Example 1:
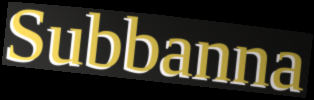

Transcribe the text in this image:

Subbanna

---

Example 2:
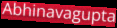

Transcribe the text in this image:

Abhinavagupta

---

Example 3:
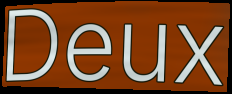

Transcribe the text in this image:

Deux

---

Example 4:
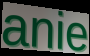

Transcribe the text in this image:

anie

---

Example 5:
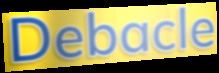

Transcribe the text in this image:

Debacle